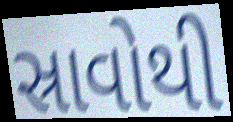
સ્રાવોથી